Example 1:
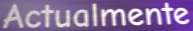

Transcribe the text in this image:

Actualmente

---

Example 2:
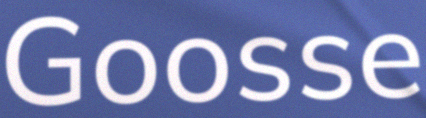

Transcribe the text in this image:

Goosse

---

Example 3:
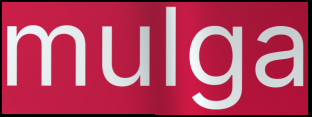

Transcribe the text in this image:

mulga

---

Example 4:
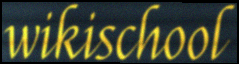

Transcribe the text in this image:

wikischool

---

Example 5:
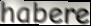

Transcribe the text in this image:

habere